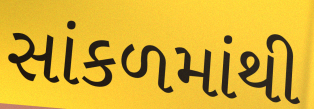
સાંકળમાંથી